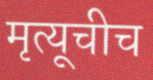
मृत्यूचीच